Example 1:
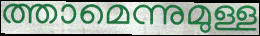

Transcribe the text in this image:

ത്താമെന്നുമുള്ള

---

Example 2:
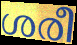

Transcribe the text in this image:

ശരീ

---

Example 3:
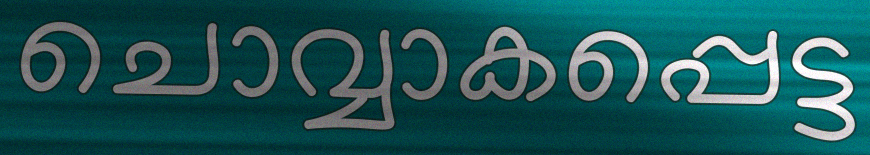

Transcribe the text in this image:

ചൊവ്വാകപ്പെട്ട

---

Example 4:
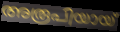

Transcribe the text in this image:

അരൂപിയായ്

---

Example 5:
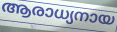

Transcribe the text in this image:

ആരാധ്യനായ